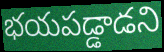
భయపడ్డాడని